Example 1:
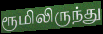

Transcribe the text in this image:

ரூமிலிருந்து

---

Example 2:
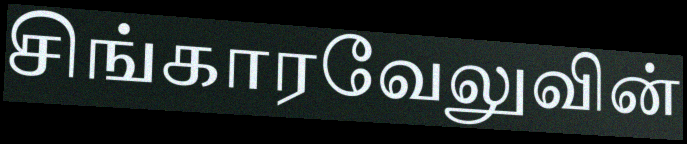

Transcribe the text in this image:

சிங்காரவேலுவின்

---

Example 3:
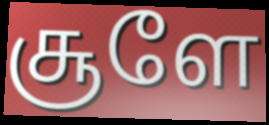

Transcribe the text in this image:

சூளே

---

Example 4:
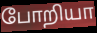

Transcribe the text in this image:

போறியா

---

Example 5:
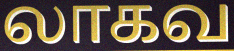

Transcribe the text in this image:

லாகவ